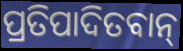
ପ୍ରତିପାଦିତବାନ୍